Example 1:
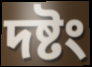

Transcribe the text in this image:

দষ্টং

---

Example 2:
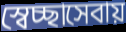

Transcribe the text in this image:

স্বেচ্ছাসেবায়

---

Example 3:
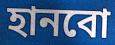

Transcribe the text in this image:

হানবো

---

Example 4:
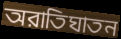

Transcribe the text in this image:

অরাতিঘাতন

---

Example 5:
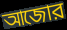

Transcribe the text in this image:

আজোর